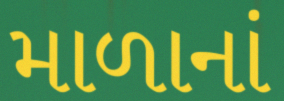
માળાનાં